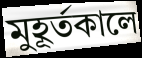
মুহূর্তকালে